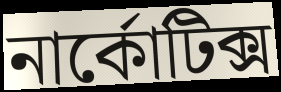
নার্কোটিক্স